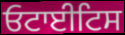
ਓਟਾਈਟਿਸ